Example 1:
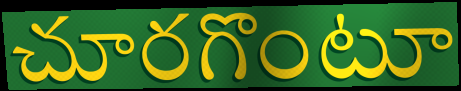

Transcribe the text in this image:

చూరగొంటూ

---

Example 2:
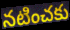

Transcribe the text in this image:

నటించకు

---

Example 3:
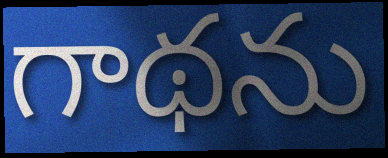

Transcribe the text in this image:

గాథను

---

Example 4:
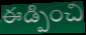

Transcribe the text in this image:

ఈడ్పించి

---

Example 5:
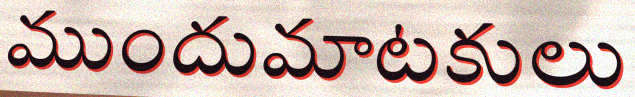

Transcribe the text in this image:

ముందుమాటకులు